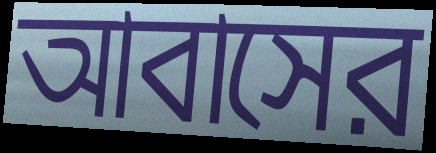
আবাসের